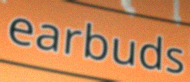
earbuds